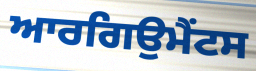
ਆਰਗਿਉਮੈਂਟਸ